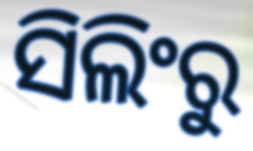
ସିଲିଂରୁ